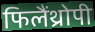
फिलैंथ्रोपी